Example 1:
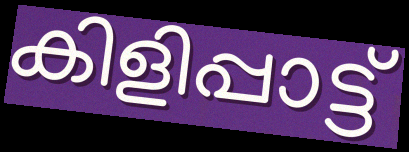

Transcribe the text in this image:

കിളിപ്പാട്ട്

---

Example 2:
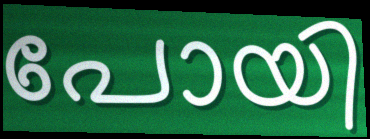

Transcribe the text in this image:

പോയി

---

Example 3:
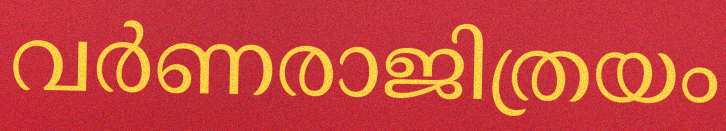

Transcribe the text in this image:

വർണരാജിത്രയം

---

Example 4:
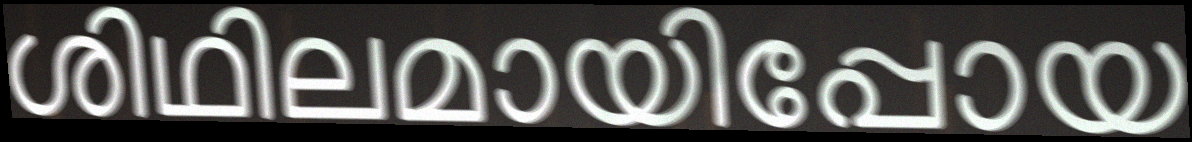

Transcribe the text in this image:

ശിഥിലമായിപ്പോയ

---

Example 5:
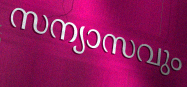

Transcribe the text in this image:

സന്യാസവും